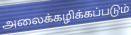
அலைக்கழிக்கப்படும்